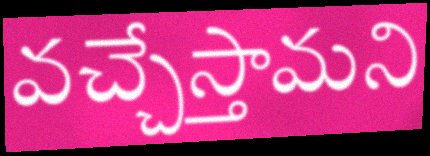
వచ్చేస్తామని